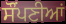
ਸੌਂਪਣੀਆਂ